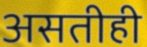
असतीही